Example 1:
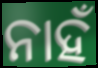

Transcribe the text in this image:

ନାହଁ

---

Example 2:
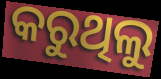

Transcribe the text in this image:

କରୁଥିଲୁ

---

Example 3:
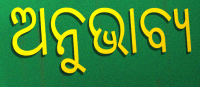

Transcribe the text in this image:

ଅନୁଭାବ୍ୟ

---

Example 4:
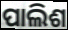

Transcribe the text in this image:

ପାଲିଶ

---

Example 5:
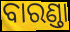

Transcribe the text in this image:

ବାରଣ୍ଡା